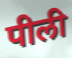
पीली